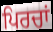
ਪਿਰਚਾਂ